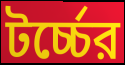
টর্চ্চের